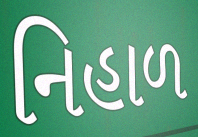
નિહાળ